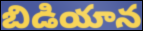
బిడియాన